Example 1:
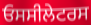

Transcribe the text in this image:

ਓਸਸੀਲੇਟਰਸ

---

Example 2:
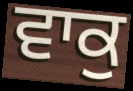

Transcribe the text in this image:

ਵਾਕੁ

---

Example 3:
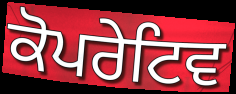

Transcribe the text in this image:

ਕੋਪਰੇਟਿਵ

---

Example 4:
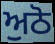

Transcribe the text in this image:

ਅੁਠੋ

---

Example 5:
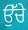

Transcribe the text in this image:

ਉੱਚੇ